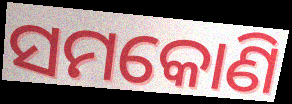
ସମକୋଣି